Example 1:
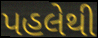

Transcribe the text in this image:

પહલેથી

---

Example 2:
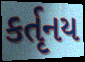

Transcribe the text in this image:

કર્તૃનય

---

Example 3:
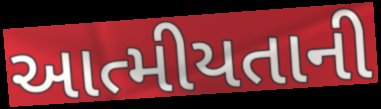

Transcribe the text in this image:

આત્મીયતાની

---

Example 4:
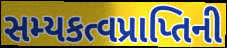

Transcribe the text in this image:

સમ્યકત્વપ્રાપ્તિની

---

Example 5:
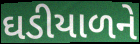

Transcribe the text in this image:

ઘડીયાળને